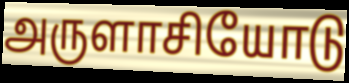
அருளாசியோடு